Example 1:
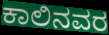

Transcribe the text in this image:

ಕಾಲಿನವರ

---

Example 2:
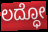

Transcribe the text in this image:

ಲದ್ಧೋ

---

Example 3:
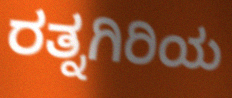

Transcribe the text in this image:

ರತ್ನಗಿರಿಯ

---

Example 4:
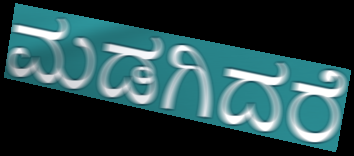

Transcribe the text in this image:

ಮಡಗಿದರೆ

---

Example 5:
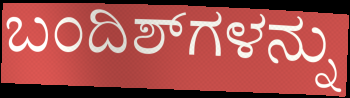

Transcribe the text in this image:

ಬಂದಿಶ್‌ಗಳನ್ನು